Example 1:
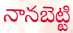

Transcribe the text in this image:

నానబెట్టి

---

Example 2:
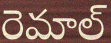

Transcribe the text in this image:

రెమాల్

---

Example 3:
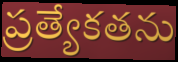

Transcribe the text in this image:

ప్రత్యేకతను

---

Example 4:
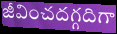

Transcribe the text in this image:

జీవించదగ్గదిగా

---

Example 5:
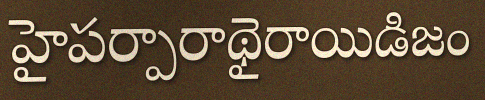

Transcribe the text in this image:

హైపర్పారాథైరాయిడిజం